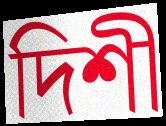
দিশী